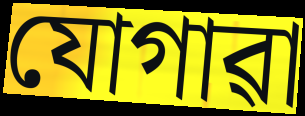
যোগাৱা